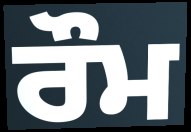
ਰੌਮ